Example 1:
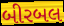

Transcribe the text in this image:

બીરબલ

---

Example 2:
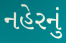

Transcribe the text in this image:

નહેરનું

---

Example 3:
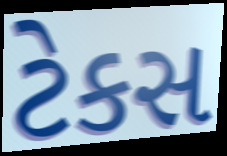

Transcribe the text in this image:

ટેકસ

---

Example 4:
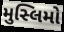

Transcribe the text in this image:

મુસ્લિમો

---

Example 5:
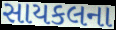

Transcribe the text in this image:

સાયકલના